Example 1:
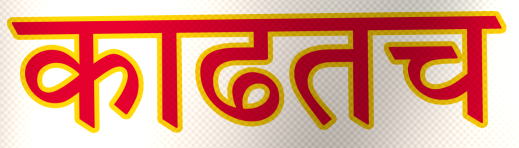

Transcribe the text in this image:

काढतच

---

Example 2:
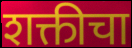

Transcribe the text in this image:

शक्तीचा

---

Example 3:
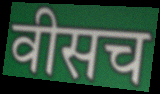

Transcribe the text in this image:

वीसच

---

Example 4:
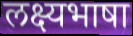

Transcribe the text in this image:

लक्ष्यभाषा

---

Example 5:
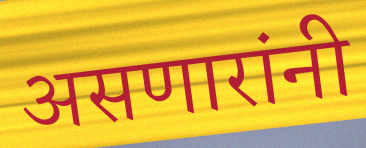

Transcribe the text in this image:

असणारांनी